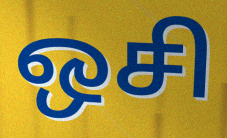
ஒசி